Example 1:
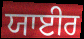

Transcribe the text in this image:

ਯਾਈਰ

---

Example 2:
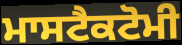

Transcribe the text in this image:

ਮਾਸਟੈਕਟੋਮੀ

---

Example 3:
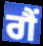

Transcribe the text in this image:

ਗੈਂ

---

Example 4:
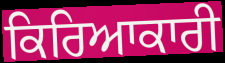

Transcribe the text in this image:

ਕਿਰਿਆਕਾਰੀ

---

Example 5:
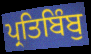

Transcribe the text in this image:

ਪ੍ਰਤਿਬਿੰਬੁ